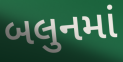
બલુનમાં